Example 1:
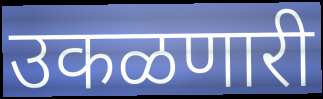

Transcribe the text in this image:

उकळणारी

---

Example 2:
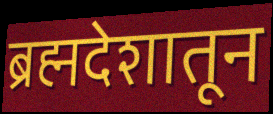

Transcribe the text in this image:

ब्रह्मदेशातून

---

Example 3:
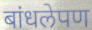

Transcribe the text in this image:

बांधलेपण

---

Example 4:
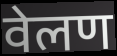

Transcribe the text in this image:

वेलण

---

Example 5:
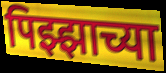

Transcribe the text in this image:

पिझ्झाच्या